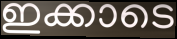
ഇക്കാടെ